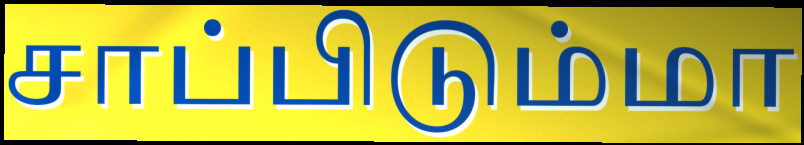
சாப்பிடும்மா